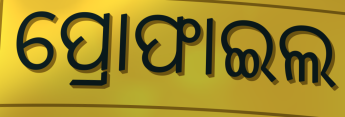
ପ୍ରୋଫାଇଲ